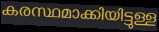
കരസ്ഥമാക്കിയിട്ടുള്ള